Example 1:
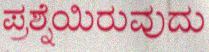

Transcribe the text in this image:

ಪ್ರಶ್ನೆಯಿರುವುದು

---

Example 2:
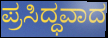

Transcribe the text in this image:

ಪ್ರಸಿದ್ಧವಾದ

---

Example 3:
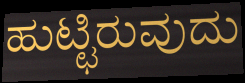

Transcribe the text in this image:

ಹುಟ್ಟಿರುವುದು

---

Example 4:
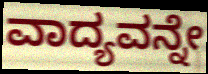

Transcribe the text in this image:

ವಾದ್ಯವನ್ನೇ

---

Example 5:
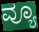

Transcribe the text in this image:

ವ್ಯೂ